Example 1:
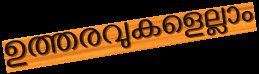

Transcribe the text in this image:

ഉത്തരവുകളെല്ലാം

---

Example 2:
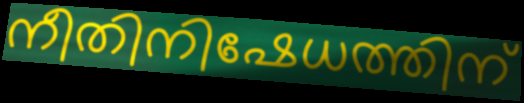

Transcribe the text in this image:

നീതിനിഷേധത്തിന്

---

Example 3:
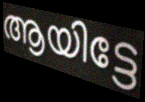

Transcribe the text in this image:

ആയിട്ടേ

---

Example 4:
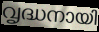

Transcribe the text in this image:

വൃദ്ധനായി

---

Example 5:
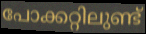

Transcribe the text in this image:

പോക്കറ്റിലുണ്ട്